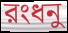
রংধনু